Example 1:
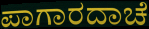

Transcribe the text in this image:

ಪಾಗಾರದಾಚೆ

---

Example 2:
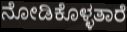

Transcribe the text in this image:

ನೋಡಿಕೊಳ್ಳತಾರೆ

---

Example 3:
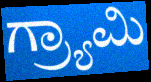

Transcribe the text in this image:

ಗ್ರ್ಯಾಮಿ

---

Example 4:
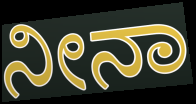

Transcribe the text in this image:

ನೀನಾ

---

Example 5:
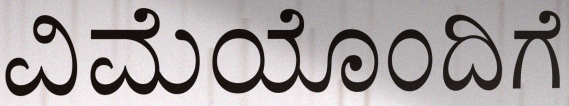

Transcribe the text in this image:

ವಿಮೆಯೊಂದಿಗೆ